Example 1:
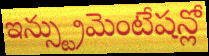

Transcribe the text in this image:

ఇన్స్ట్రుమెంటేషన్లో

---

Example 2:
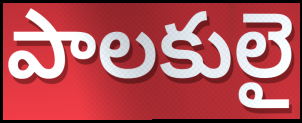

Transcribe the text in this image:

పాలకులై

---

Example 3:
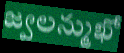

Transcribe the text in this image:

జ్వలన్ముఖో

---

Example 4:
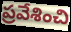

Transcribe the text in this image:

ప్రవేశించి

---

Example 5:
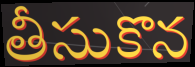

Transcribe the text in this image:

తీసుకొన